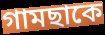
গামছাকে